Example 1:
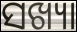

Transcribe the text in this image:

ସଖ୍ୟା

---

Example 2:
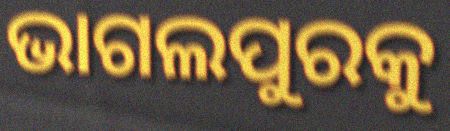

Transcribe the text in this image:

ଭାଗଲପୁରକୁ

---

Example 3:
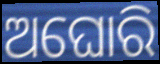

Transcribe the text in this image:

ଅଘୋରି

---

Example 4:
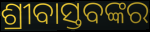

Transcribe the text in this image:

ଶ୍ରୀବାସ୍ତବଙ୍କର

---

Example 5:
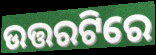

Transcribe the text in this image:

ଉତ୍ତରଟିରେ